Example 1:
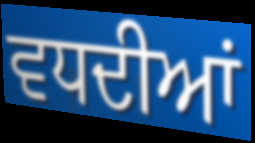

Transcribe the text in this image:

ਵਧਦੀਆਂ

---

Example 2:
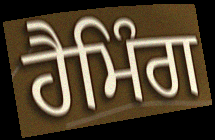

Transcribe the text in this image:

ਹੈਮਿੰਗ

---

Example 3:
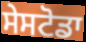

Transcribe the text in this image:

ਸੇਸਟੋਡਾ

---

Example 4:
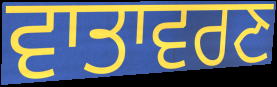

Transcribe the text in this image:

ਵਾਤਾਵਰਣ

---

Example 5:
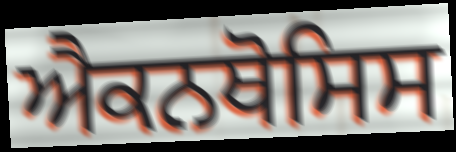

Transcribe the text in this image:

ਐਕਨਥੋਸਿਸ